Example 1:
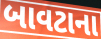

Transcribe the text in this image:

બાવટાના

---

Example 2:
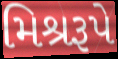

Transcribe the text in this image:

મિશ્રરૂપે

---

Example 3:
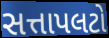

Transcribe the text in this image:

સત્તાપલટો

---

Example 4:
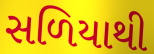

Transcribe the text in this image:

સળિયાથી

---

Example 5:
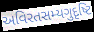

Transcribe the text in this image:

અવિરતસમ્યગુદૃષ્ટિ